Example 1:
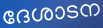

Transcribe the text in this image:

ദേശാടന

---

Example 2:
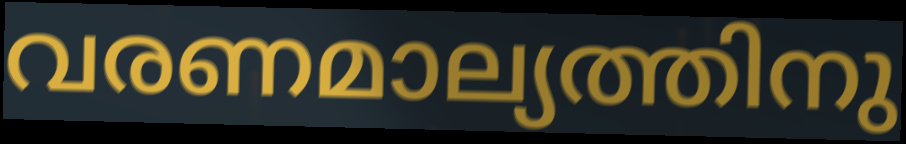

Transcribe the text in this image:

വരണമാല്യത്തിനു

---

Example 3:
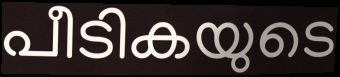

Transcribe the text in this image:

പീടികയുടെ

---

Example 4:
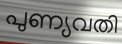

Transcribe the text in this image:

പുണ്യവതി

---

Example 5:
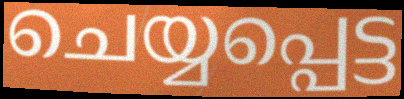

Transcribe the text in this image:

ചെയ്യപ്പെട്ട